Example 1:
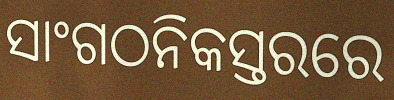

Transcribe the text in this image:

ସାଂଗଠନିକସ୍ତରରେ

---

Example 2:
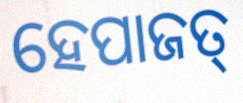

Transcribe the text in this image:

ହେପାଜତ୍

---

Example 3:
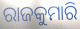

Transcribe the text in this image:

ରାଜକୁମାରି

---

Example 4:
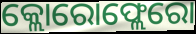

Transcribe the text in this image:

କ୍ଲୋରୋଫ୍ଲେରୋ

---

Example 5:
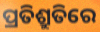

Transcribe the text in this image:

ପ୍ରତିଶ୍ରୁତିରେ